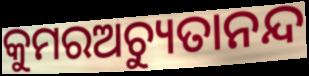
କୁମରଅଚ୍ୟୁତାନନ୍ଦ